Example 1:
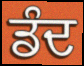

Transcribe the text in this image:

ਡੰਦ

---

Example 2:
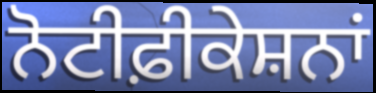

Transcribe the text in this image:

ਨੋਟੀਫ਼ੀਕੇਸ਼ਨਾਂ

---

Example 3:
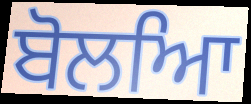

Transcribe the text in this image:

ਬੋਲਆਿ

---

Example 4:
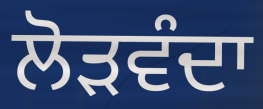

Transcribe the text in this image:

ਲੋੜਵੰਦਾ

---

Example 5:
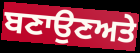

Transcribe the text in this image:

ਬਣਾਉਣਅਤੇ